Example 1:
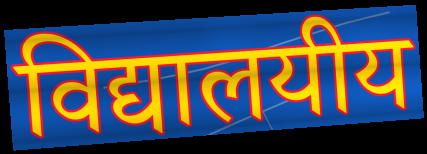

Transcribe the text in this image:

विद्यालयीय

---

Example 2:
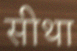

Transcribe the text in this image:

सीथा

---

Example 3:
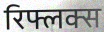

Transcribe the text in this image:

रिफ्लक्स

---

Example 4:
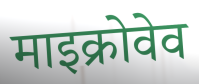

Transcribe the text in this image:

माइक्रोवेव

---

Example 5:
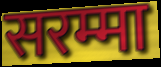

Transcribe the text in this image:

सरम्मा